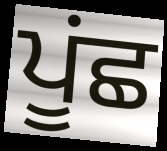
ਪੂਂਛ